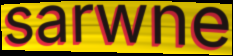
sarwne